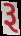
રૂ